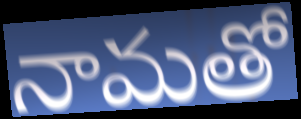
నామతో